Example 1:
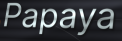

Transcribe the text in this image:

Papaya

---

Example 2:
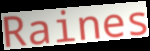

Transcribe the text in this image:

Raines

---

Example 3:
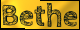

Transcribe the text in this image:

Bethe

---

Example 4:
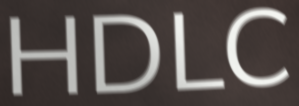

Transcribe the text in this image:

HDLC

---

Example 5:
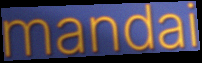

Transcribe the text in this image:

mandai